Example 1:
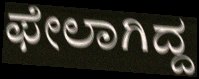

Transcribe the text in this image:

ಫೇಲಾಗಿದ್ದ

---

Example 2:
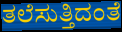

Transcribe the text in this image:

ತಲೆಸುತ್ತಿದಂತೆ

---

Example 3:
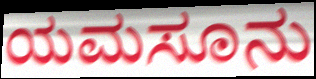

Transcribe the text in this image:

ಯಮಸೂನು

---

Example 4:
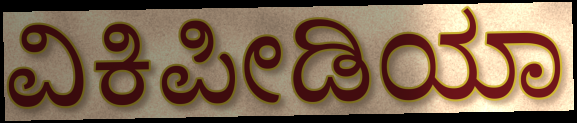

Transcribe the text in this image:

ವಿಕಿಪೀಡಿಯಾ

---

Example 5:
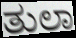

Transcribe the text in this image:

ತುಲಾ